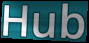
Hub